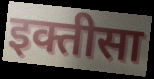
इक्तीसा